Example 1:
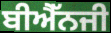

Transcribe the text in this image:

ਬੀਐੱਨਜੀ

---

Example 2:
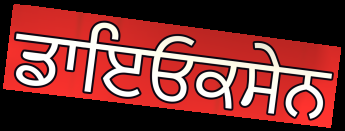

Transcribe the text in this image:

ਡਾਇਓਕਸੇਨ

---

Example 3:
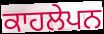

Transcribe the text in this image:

ਕਾਹਲੇਪਨ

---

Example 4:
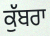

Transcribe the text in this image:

ਕੁੱਬਰਾ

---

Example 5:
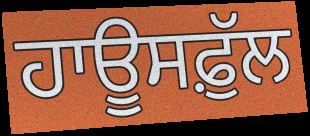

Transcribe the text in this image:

ਹਾਊਸਫ਼ੁੱਲ